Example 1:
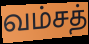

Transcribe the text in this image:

வம்சத்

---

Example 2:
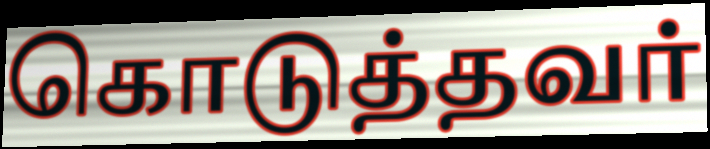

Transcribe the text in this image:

கொடுத்தவர்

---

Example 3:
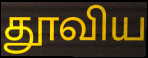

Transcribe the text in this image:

தூவிய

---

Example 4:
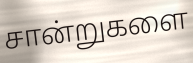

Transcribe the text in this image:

சான்றுகளை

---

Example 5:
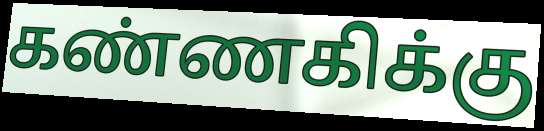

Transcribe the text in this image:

கண்ணகிக்கு